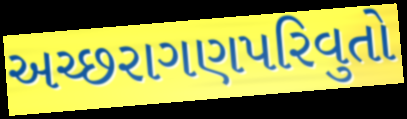
અચ્છરાગણપરિવુતો